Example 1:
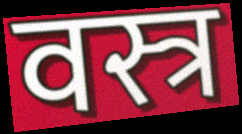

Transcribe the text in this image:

वस्त्र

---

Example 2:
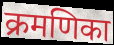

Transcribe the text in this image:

क्रमणिका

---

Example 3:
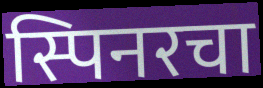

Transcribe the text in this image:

स्पिनरचा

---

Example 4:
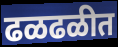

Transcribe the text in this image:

ढळढळीत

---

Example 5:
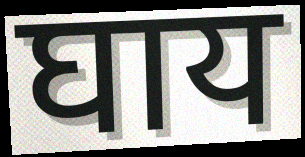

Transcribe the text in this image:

घाय